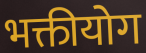
भक्तीयोग